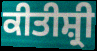
ਕੀਤੀਸ਼੍ਰੀ